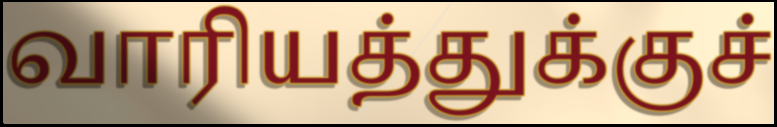
வாரியத்துக்குச்